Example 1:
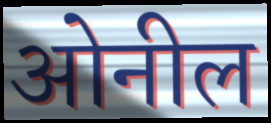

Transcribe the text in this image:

ओनील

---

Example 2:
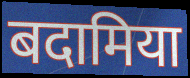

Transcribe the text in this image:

बदामिया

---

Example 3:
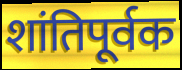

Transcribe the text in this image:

शांतिपूर्वक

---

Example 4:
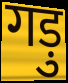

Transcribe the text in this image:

गड़ु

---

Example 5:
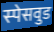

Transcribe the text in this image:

स्पेसवुड